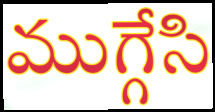
ముగ్గేసి